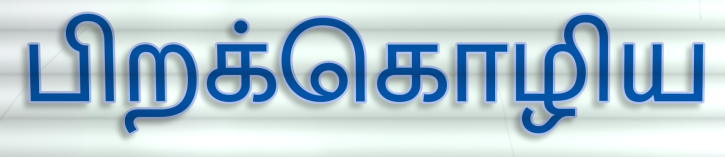
பிறக்கொழிய